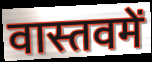
वास्तवमें